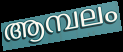
ആമ്പലം